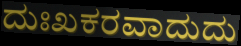
ದುಃಖಕರವಾದುದು